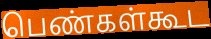
பெண்கள்கூட